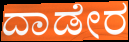
ದಾಡೇರ